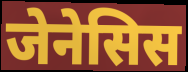
जेनेसिस